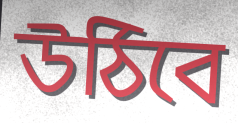
উঠিবে